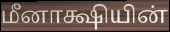
மீனாக்ஷியின்